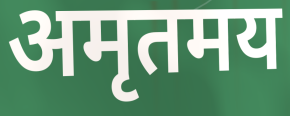
अमृतमय